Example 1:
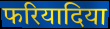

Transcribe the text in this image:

फरियादिया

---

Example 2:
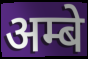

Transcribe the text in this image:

अम्बे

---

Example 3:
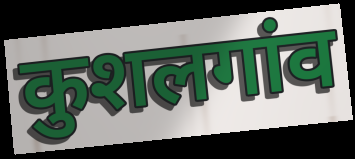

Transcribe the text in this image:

कुशलगांव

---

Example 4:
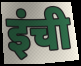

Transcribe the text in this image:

इंची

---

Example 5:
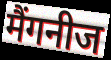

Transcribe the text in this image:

मैंगनीज